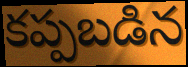
కప్పబడిన